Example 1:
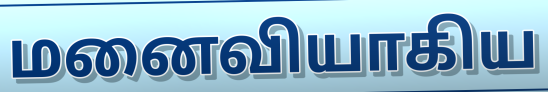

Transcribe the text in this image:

மனைவியாகிய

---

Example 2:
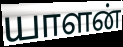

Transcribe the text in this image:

யாளன்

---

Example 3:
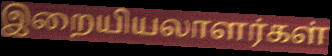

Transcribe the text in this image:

இறையியலாளர்கள்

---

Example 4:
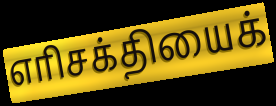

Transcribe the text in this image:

எரிசக்தியைக்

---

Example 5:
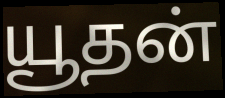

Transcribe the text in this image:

யூதன்